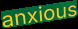
anxious